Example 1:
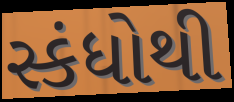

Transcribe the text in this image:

સ્કંધોથી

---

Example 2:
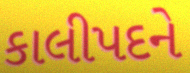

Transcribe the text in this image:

કાલીપદને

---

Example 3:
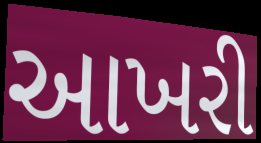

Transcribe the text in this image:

આખરી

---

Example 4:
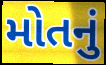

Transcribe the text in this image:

મોતનું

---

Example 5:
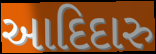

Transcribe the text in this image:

આદિદારુ